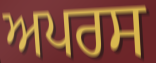
ਅਪਰਸ